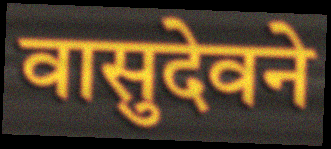
वासुदेवने